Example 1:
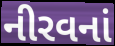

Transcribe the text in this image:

નીરવનાં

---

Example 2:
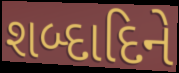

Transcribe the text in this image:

શબ્દાદિને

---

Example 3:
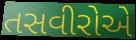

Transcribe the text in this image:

તસવીરોએ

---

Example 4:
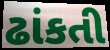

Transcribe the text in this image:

ઢાંકતી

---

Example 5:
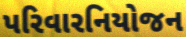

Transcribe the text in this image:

પરિવારનિયોજન